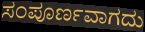
ಸಂಪೂರ್ಣವಾಗದು